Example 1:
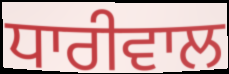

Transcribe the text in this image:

ਧਾਰੀਵਾਲ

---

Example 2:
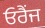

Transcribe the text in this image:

ਓਰੈਂਜ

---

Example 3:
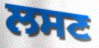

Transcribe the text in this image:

ਲਸਣ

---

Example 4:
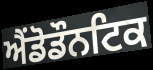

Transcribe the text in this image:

ਐਂਡੋਡੌਨਟਿਕ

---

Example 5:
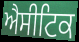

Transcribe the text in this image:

ਐਸੀਟਿਕ